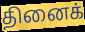
தினைக்